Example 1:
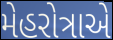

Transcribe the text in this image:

મેહરોત્રાએ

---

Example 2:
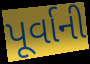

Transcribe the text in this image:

પૂર્વાની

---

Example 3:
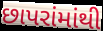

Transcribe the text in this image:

છાપરાંમાંથી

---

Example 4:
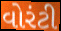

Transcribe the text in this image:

વોરંટી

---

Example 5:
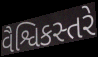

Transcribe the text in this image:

વૈશ્વિકસ્તરે